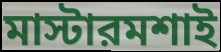
মাস্টারমশাই